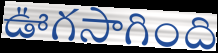
ఊగసాగింది